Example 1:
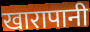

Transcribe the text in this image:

खारापानी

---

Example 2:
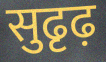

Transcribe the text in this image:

सुढृढ़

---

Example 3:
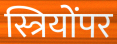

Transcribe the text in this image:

स्त्रियोंपर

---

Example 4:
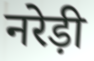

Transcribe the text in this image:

नरेड़ी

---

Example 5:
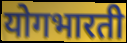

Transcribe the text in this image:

योगभारती